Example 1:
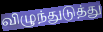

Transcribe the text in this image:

விழுந்துடுத்து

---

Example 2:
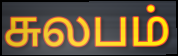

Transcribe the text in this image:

சுலபம்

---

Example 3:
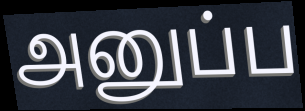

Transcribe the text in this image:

அனுப்ப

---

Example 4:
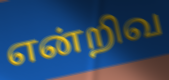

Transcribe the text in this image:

என்றிவ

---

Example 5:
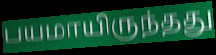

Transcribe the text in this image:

பயமாயிருந்தது